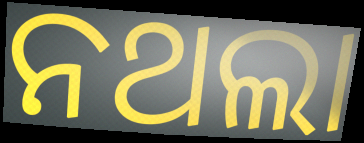
ନଥଲା